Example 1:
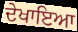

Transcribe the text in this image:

ਦੇਖਾਇਆ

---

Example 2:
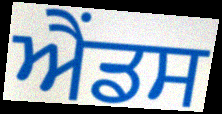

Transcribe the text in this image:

ਐਂਡਸ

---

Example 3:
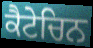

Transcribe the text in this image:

ਕੈਟੇਚਿਨ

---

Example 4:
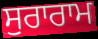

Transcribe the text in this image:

ਸੁਰਾਰਾਮ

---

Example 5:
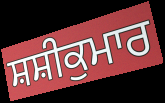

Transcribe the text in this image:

ਸ਼ਸ਼ੀਕੁਮਾਰ